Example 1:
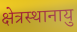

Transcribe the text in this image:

क्षेत्रस्थानायु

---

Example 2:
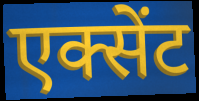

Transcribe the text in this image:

एक्सेंट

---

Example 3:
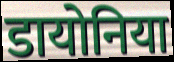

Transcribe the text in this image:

डायोनिया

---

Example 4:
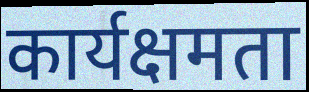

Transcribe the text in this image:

कार्यक्षमता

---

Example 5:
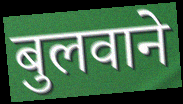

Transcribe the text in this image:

बुलवाने